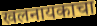
खलनायकाचा